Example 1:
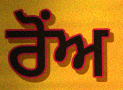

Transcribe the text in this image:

ਰੋਂਅ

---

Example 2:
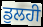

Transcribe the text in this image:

ਡੁਲਹੀ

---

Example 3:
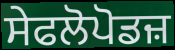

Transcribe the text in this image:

ਸੇਫਲੋਪੋਡਜ਼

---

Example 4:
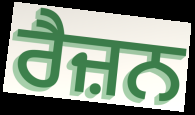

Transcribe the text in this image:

ਰੈਜ਼ਨ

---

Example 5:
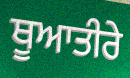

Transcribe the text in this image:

ਥੂਆਤੀਰੇ